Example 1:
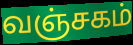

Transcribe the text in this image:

வஞ்சகம்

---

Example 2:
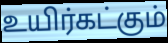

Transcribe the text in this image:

உயிர்கட்கும்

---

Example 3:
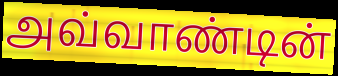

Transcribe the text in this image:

அவ்வாண்டின்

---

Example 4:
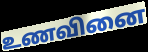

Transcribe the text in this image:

உணவினை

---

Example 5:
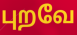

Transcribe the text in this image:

புறவே